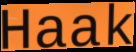
Haak